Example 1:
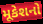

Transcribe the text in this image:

મૂકેશનો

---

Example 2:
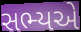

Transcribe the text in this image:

સભ્યએ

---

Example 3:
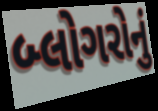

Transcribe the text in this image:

બ્લોગરોનું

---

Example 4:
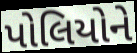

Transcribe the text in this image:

પોલિયોને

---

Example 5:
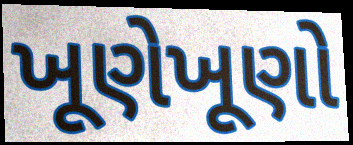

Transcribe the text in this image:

ખૂણેખૂણો